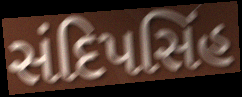
સંદિપસિંહ